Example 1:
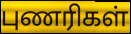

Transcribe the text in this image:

புணரிகள்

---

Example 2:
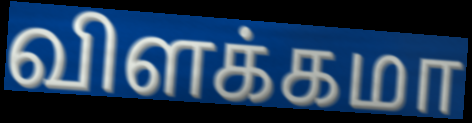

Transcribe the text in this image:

விளக்கமா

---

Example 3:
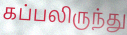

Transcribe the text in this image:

கப்பலிருந்து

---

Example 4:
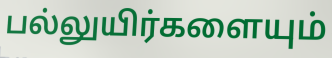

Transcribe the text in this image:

பல்லுயிர்களையும்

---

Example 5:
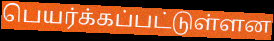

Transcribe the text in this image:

பெயர்க்கப்பட்டுள்ளன